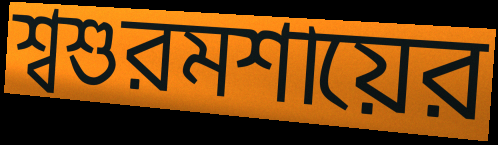
শ্বশুরমশায়ের